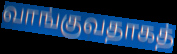
வாங்குவதாகத்